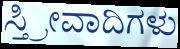
ಸ್ತ್ರೀವಾದಿಗಳು